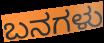
ಬನಗಳು